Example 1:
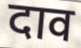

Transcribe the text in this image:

दाव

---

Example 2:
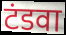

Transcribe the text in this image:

टंडवा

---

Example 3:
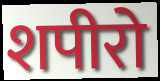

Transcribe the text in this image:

शपीरो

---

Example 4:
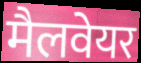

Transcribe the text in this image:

मैलवेयर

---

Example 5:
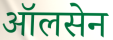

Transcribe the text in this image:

ऑलसेन